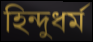
হিন্দুধৰ্ম